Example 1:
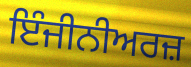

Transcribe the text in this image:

ਇੰਜੀਨੀਅਰਜ਼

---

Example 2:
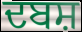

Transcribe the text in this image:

ਦਬਸ਼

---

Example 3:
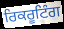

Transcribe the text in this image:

ਰਿਕਰੂਟਿੰਗ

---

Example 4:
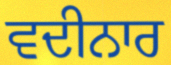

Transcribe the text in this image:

ਵਦੀਨਾਰ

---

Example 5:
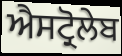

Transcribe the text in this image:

ਐਸਟ੍ਰੋਲੇਬ